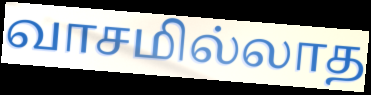
வாசமில்லாத